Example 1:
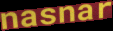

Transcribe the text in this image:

nasnar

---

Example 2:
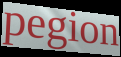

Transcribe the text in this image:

pegion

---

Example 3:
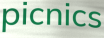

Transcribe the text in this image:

picnics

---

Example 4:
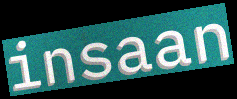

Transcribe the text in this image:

insaan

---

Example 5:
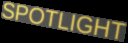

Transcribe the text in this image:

SPOTLIGHT